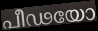
പീഢയോ